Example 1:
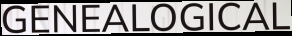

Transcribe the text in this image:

GENEALOGICAL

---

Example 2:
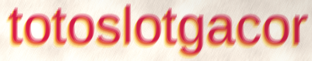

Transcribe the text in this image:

totoslotgacor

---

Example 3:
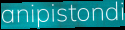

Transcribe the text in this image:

anipistondi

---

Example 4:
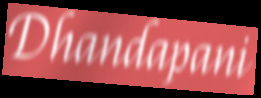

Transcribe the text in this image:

Dhandapani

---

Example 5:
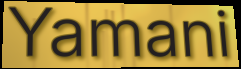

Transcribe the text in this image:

Yamani